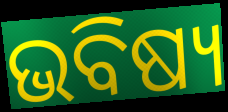
ଭବିଷ୍ଯ